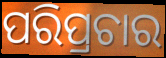
ପରିପ୍ରଚାର